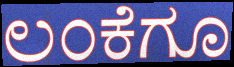
ಲಂಕೆಗೂ